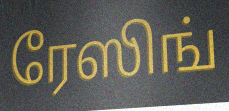
ரேஸிங்